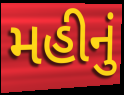
મહીનું